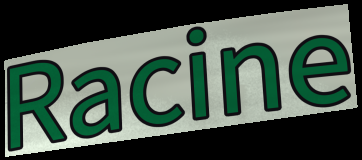
Racine